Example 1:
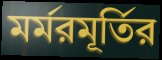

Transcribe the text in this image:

মর্মরমূর্তির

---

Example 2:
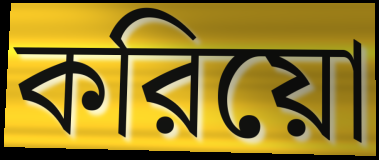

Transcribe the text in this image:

করিয়ো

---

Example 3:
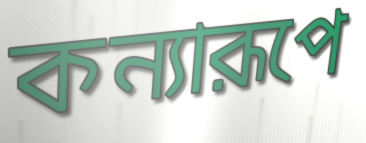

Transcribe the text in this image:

কন্যারূপে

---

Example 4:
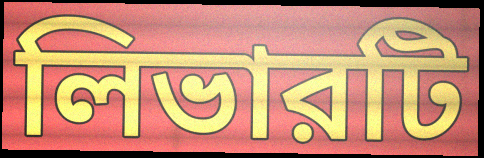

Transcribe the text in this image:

লিভারটি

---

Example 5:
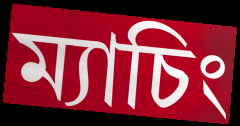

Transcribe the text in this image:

ম্যাচিং